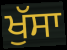
ਖੁੱਸਾ